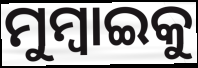
ମୁମ୍ୱାଇକୁ